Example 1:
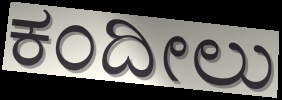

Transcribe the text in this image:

ಕಂದೀಲು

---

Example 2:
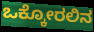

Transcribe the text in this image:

ಒಕ್ಕೋರಲಿನ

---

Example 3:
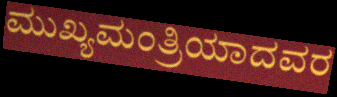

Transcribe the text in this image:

ಮುಖ್ಯಮಂತ್ರಿಯಾದವರ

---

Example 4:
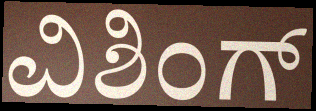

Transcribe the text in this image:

ವಿಶಿಂಗ್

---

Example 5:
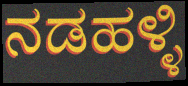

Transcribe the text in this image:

ನಡಹಳ್ಳಿ